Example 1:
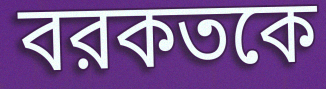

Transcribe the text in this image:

বরকতকে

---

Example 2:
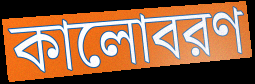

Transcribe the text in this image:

কালোবরণ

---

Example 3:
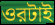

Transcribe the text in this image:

ওরটাই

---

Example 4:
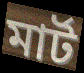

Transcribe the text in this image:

মার্ট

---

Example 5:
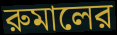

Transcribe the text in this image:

রুমালের